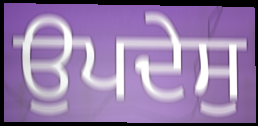
ਉਪਦੇਸੁ